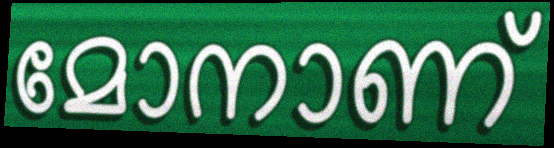
മോനാണ്